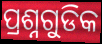
ପ୍ରଶ୍ନଗୁଡିକ